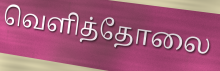
வெளித்தோலை